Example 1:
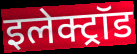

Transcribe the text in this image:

इलेक्ट्रॉड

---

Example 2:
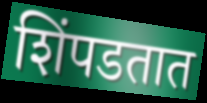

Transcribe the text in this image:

शिंपडतात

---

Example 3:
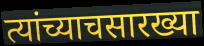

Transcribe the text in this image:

त्यांच्याचसारख्या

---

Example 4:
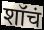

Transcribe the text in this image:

शॉचं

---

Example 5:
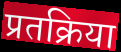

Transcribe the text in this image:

प्रतक्रिया